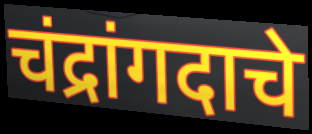
चंद्रांगदाचे